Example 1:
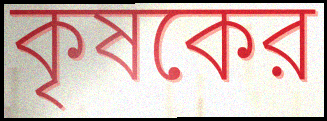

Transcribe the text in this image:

কৃষকের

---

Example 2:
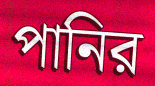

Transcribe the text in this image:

পানির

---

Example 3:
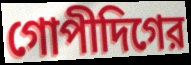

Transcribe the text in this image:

গোপীদিগের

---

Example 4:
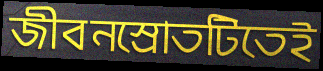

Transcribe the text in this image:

জীবনস্রোতটিতেই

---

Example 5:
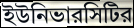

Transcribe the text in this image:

ইউনিভারসিটির